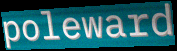
poleward